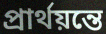
প্রার্থয়ন্তে